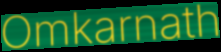
Omkarnath